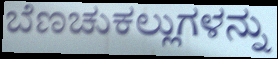
ಬೆಣಚುಕಲ್ಲುಗಳನ್ನು